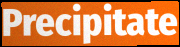
Precipitate